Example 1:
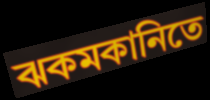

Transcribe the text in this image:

ঝকমকানিতে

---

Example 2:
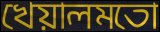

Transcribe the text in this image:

খেয়ালমতো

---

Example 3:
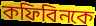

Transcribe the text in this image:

কফিবিনকে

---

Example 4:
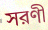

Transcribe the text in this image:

সরণী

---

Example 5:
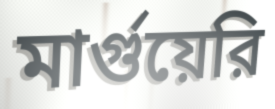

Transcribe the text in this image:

মার্গুয়েরি